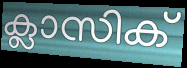
ക്ലാസിക്